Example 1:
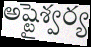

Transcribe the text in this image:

అష్టైశ్వర్య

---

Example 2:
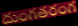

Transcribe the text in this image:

దుంగతరంగ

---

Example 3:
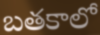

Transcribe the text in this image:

బతకాలో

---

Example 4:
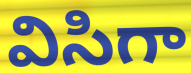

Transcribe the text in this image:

విసిగా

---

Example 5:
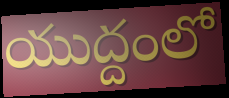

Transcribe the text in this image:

యుద్దంలో